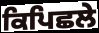
ਕਿਪਿਛਲੇ